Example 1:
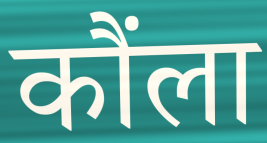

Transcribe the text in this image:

कौंला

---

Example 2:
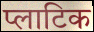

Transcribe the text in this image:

प्लाटिक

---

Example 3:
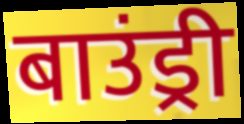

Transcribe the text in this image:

बाउंड्री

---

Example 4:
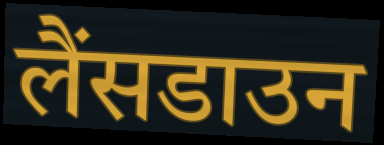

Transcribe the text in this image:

लैंसडाउन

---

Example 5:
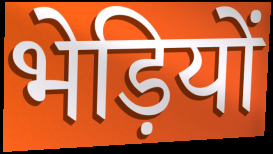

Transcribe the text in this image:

भेड़ियों